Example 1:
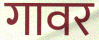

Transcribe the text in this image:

गावर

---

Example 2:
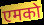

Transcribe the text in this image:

एमको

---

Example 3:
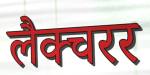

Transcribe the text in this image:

लैक्चरर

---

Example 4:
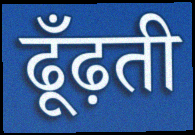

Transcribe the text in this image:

ढूँढ़ती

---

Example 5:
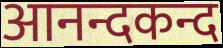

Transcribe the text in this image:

आनन्दकन्द